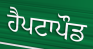
ਹੈਪਟਾਪੌਡ